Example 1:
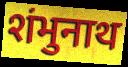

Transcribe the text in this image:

शंभुनाथ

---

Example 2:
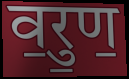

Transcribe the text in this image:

व॒रु॒ण॒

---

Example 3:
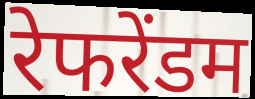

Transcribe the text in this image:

रेफरेंडम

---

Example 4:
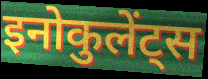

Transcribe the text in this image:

इनोकुलेंट्स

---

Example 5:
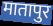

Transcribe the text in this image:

मातापुर